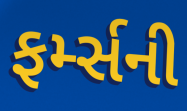
ફર્મ્સની